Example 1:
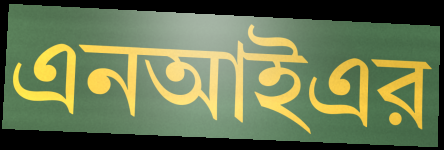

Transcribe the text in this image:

এনআইএর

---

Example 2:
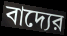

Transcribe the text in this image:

বাদ্যের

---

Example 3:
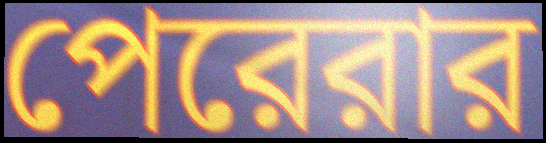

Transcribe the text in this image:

পেরেরার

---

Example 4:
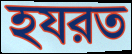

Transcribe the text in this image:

হযরত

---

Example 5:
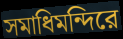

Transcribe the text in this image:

সমাধিমন্দিরে